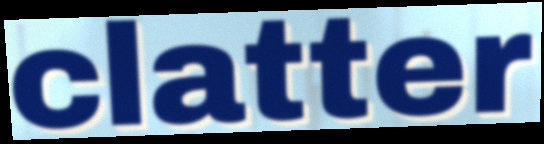
clatter